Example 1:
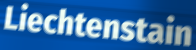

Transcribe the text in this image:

Liechtenstain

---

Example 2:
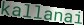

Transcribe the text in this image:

kallanai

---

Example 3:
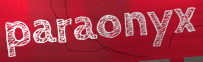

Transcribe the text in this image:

paraonyx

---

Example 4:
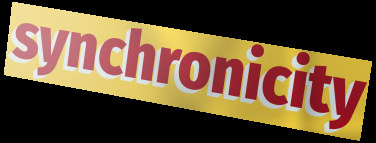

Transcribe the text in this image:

synchronicity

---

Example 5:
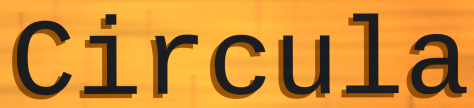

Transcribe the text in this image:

Circula